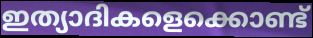
ഇത്യാദികളെക്കൊണ്ട്